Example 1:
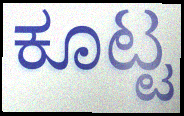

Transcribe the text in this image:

ಕೂಟ್ಟ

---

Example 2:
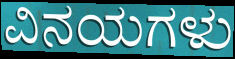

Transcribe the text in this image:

ವಿನಯಗಳು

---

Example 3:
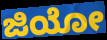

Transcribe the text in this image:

ಜಿಯೋ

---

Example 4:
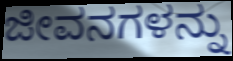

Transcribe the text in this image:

ಜೀವನಗಳನ್ನು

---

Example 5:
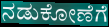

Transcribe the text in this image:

ನಡುಕೋಣೆಗೆ